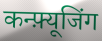
कन्फ़्यूजिंग